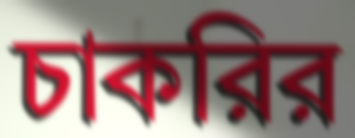
চাকরির